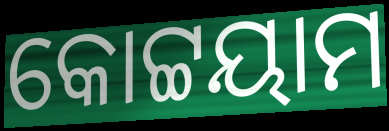
କୋଟ୍ଟୟାମ